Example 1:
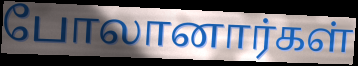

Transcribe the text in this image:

போலானார்கள்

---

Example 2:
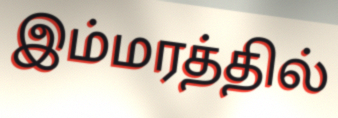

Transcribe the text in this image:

இம்மரத்தில்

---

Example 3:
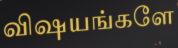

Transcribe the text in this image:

விஷயங்களே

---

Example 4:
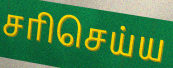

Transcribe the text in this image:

சரிசெய்ய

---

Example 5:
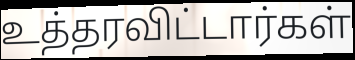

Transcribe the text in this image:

உத்தரவிட்டார்கள்